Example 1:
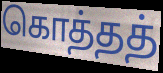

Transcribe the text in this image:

கொத்தத்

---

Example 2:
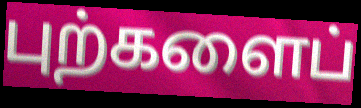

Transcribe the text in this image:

புற்களைப்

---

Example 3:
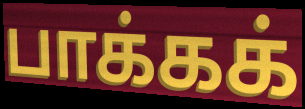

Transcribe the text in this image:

பாக்கக்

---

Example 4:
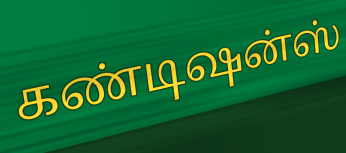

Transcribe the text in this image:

கண்டிஷன்ஸ்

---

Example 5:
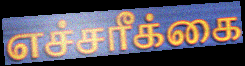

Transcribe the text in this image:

எச்சரீக்கை